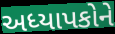
અધ્યાપકોને